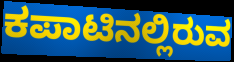
ಕಪಾಟಿನಲ್ಲಿರುವ